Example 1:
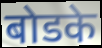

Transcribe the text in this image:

बोडके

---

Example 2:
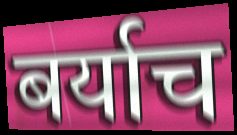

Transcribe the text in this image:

बर्याच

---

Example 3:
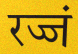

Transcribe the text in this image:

रज्जं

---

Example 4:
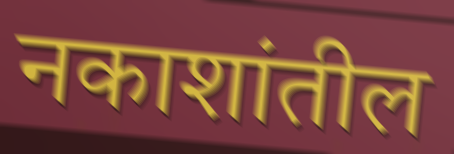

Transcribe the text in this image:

नकाशांतील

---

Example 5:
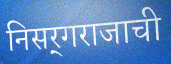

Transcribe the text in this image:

निसर्गराजाची